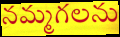
నమ్మగలను